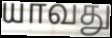
யாவது